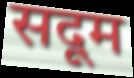
सदूम